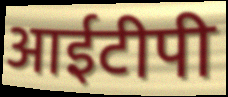
आईटीपी